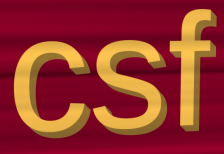
csf